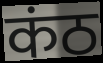
कंठ